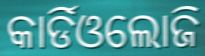
କାର୍ଡିଓଲୋଜି